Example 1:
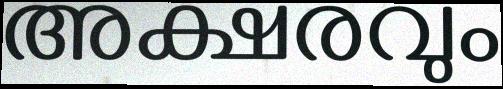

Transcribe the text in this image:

അക്ഷരവും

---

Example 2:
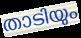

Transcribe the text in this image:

താടിയും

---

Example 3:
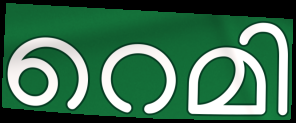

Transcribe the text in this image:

റെമി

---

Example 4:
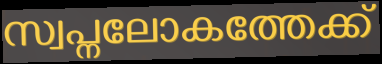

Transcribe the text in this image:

സ്വപ്നലോകത്തേക്ക്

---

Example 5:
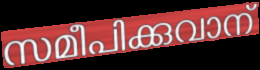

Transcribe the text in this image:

സമീപിക്കുവാന്